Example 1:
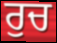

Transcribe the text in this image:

ਰੁਚ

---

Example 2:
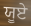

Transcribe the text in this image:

ਯੂਏ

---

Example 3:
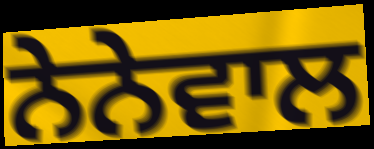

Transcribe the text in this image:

ਨੇਨੇਵਾਲ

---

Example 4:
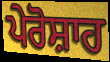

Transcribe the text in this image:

ਪੇਰੋਸ਼ਾਹ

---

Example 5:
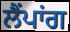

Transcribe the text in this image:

ਲੈਂਪਾਂਗ